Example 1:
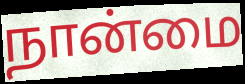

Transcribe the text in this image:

நான்மை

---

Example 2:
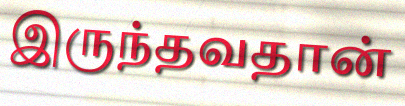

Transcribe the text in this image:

இருந்தவதான்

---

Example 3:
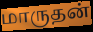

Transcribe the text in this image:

மாருதன்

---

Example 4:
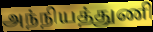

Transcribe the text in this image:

அந்நியத்துணி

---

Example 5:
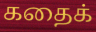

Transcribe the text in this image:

கதைக்